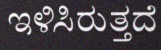
ಇಳಿಸಿರುತ್ತದೆ